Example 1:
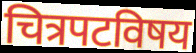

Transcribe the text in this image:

चित्रपटविषय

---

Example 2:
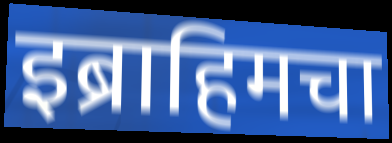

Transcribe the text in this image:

इब्राहिमचा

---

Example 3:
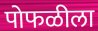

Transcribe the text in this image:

पोफळीला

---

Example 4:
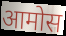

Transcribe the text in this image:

आमोस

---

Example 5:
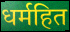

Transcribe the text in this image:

धर्महित